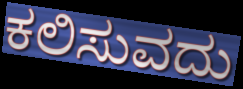
ಕಲಿಸುವದು